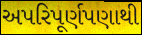
અપરિપૂર્ણપણાથી